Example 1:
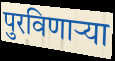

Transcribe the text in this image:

पुरविणाऱ्या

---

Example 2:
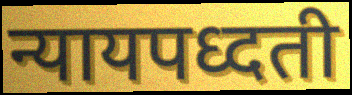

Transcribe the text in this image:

न्यायपध्दती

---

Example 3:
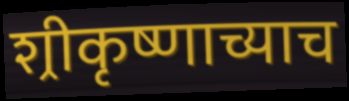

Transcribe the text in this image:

श्रीकृष्णाच्याच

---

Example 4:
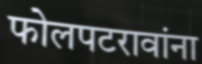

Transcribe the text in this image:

फोलपटरावांना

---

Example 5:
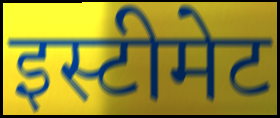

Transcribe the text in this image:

इस्टीमेट